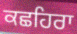
ਕਛਹਿਰਾ